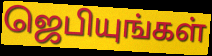
ஜெபியுங்கள்